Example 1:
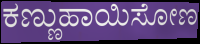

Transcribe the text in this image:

ಕಣ್ಣುಹಾಯಿಸೋಣ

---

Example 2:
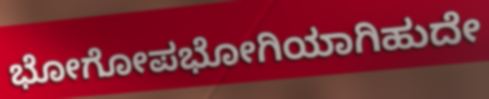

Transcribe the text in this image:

ಭೋಗೋಪಭೋಗಿಯಾಗಿಹುದೇ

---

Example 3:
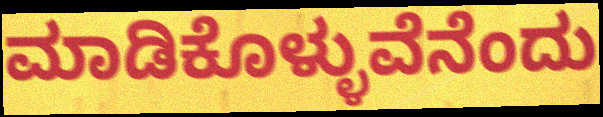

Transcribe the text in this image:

ಮಾಡಿಕೊಳ್ಳುವೆನೆಂದು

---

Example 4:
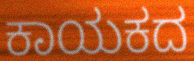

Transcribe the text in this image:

ಕಾಯಕದ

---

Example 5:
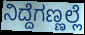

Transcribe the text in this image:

ನಿದ್ದೆಗಣ್ಣಲ್ಲೆ